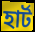
হাৰ্ট